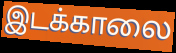
இடக்காலை